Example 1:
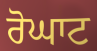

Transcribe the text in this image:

ਰੋਘਾਟ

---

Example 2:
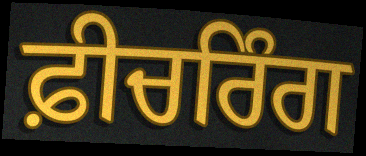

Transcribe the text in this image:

ਫ਼ੀਚਰਿੰਗ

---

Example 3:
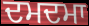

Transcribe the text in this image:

ਦਮਦਮਾ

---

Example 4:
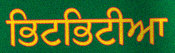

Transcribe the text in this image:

ਭਿਟਭਿਟੀਆ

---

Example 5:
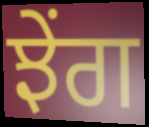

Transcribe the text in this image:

ਝੇਂਗ